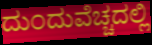
ದುಂದುವೆಚ್ಚದಲ್ಲಿ